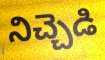
నిచ్చెడి